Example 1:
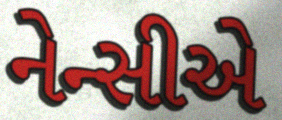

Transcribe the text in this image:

નેન્સીએ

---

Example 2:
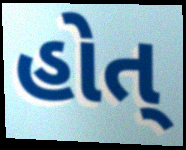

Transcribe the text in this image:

હોત્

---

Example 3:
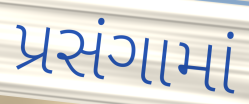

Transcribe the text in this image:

પ્રસંગામાં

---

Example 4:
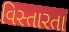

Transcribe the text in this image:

વિસ્તારતા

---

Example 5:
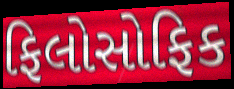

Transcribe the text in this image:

ફિલોસોફિક